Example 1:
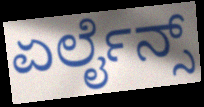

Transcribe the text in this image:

ಏರ್ಲೈನ್ಸ್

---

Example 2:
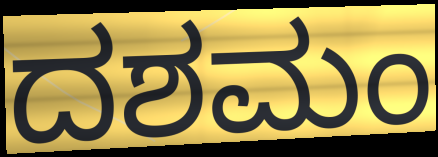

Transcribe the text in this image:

ದಶಮಂ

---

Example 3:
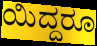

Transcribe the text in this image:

ಯಿದ್ದರೂ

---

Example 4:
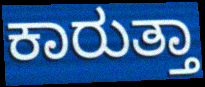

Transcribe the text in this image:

ಕಾರುತ್ತಾ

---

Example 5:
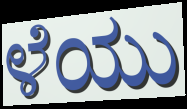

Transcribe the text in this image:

ಳೆಯು